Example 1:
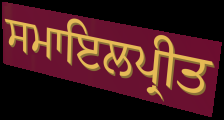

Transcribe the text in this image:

ਸਮਾਇਲਪ੍ਰੀਤ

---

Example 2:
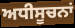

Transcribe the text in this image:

ਅਧੀਸੂਚਨਾਂ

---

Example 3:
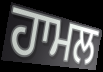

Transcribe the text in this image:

ਹਾਮਲ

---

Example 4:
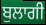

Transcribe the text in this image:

ਬੁਲਾਗੀ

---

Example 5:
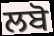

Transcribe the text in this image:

ਲਬੋ